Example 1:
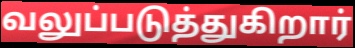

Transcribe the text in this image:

வலுப்படுத்துகிறார்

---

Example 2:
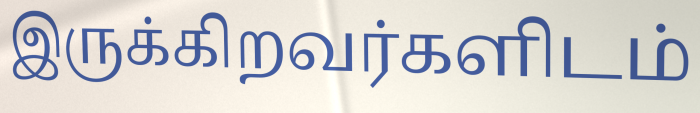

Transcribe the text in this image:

இருக்கிறவர்களிடம்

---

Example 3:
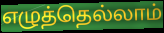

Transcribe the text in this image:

எழுத்தெல்லாம்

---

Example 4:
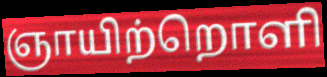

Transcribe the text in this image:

ஞாயிற்றொளி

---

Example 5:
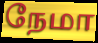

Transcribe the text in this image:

நேமா